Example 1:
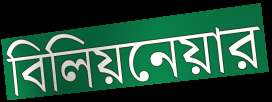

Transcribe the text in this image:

বিলিয়নেয়ার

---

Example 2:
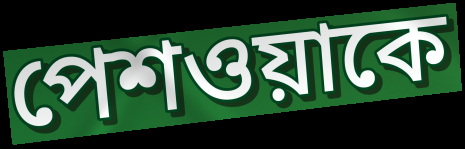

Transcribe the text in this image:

পেশওয়াকে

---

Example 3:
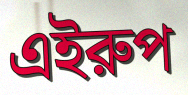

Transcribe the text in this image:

এইরুপ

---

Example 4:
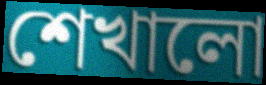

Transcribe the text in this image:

শেখালো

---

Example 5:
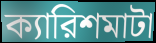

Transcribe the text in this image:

ক্যারিশমাটা